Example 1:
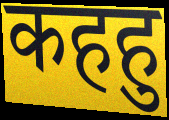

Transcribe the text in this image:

कहहु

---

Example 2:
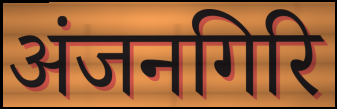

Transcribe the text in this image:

अंजनगिरि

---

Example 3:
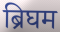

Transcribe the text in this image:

ब्रिघम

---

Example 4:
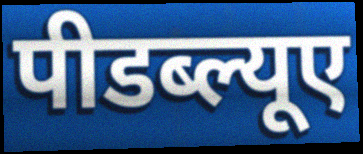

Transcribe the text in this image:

पीडब्ल्यूए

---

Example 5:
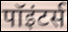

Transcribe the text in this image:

पॉइंटर्स